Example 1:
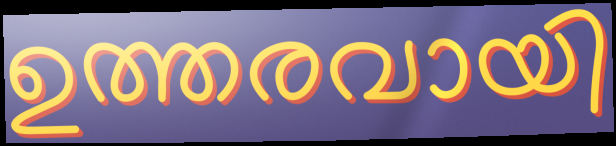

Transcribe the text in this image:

ഉത്തരവായി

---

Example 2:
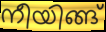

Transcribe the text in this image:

നീയിങ്ങ്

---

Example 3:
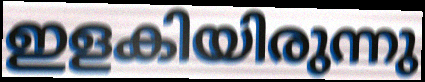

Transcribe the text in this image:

ഇളകിയിരുന്നു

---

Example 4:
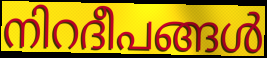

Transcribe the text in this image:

നിറദീപങ്ങൾ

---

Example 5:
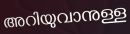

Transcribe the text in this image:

അറിയുവാനുള്ള